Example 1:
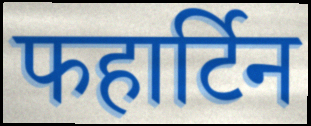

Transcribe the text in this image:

फहार्टिन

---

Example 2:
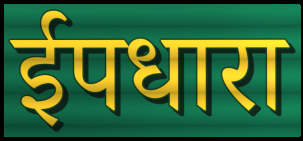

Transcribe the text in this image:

ईपधारा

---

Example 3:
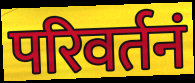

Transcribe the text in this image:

परिवर्तनं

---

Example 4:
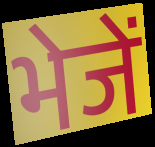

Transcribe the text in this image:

भेजें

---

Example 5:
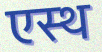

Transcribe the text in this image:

एस्थ